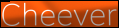
Cheever